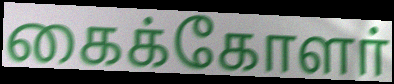
கைக்கோளர்